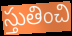
స్తుతించి